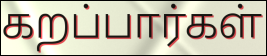
கறப்பார்கள்